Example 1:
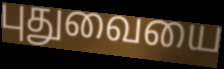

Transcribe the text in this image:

புதுவையை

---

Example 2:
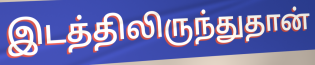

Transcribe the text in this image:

இடத்திலிருந்துதான்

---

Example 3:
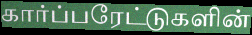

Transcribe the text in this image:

கார்ப்பரேட்டுகளின்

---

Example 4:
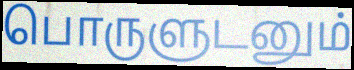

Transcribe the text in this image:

பொருளுடனும்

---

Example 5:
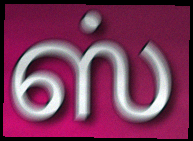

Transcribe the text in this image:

ஸ்